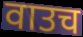
वाउच